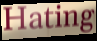
Hating